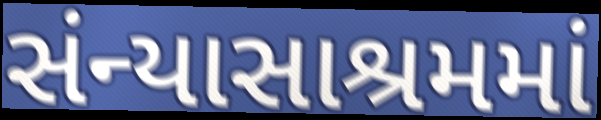
સંન્યાસાશ્રમમાં